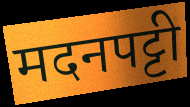
मदनपट्टी